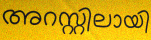
അറസ്റ്റിലായി